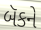
બૅકને